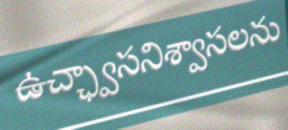
ఉచ్ఛ్వాసనిశ్వాసలను